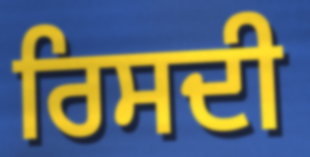
ਰਿਸਦੀ